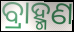
ବ୍ରାହ୍ମଣ